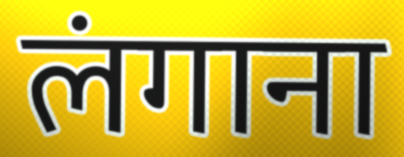
लंगाना